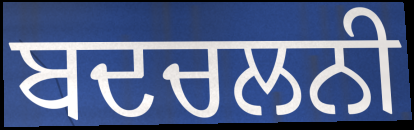
ਬਦਚਲਨੀ